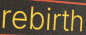
rebirth